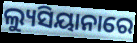
ଲ୍ୟୁସିୟାନାରେ